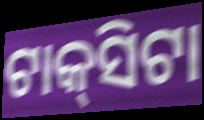
ଟାକ୍‌ସିଟା